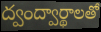
ద్వంద్వార్థాలతో